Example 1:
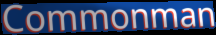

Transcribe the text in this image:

Commonman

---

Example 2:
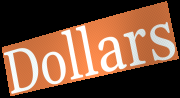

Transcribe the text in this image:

Dollars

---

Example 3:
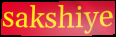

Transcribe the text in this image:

sakshiye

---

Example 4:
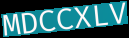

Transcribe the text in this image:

MDCCXLV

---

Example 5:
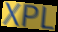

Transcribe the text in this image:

XPL